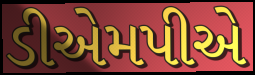
ડીએમપીએ